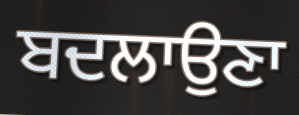
ਬਦਲਾਉਣਾ